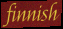
finnish